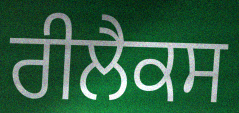
ਰੀਲੈਕਸ